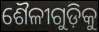
ଶୈଳୀଗୁଡ଼ିକୁ